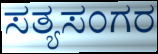
ಸತ್ಯಸಂಗರ